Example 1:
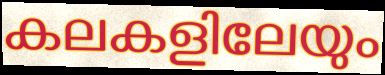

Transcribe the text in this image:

കലകളിലേയും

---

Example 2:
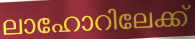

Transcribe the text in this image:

ലാഹോറിലേക്ക്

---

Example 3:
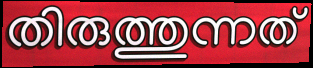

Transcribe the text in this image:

തിരുത്തുന്നത്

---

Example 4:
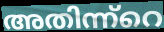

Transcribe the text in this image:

അതിന്ന്റെ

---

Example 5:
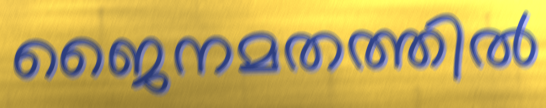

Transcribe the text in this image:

ജൈനമതത്തിൽ